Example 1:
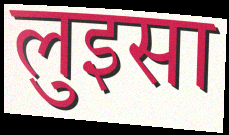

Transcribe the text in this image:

लुइसा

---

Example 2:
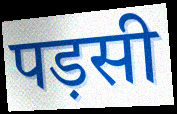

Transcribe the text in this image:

पड़सी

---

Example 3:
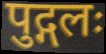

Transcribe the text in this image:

पुद्गलः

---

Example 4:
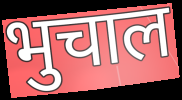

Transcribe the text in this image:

भुचाल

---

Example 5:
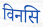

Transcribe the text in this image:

विनसि